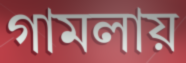
গামলায়